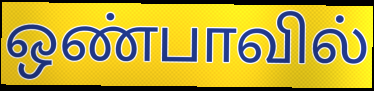
ஒண்பாவில்